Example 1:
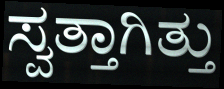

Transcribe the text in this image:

ಸ್ವತ್ತಾಗಿತ್ತು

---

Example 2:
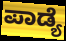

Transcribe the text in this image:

ಪಾಡ್ಯೆ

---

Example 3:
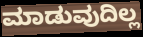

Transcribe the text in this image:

ಮಾಡುವುದಿಲ್ಲ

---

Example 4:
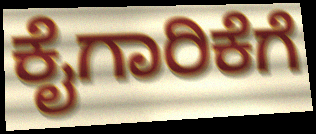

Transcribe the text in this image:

ಕೈಗಾರಿಕೆಗೆ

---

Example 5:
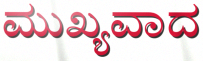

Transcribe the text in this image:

ಮುಖ್ಯವಾದ